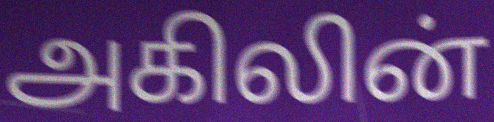
அகிலின்